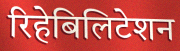
रिहेबिलिटेशन